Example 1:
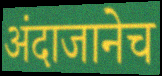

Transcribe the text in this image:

अंदाजानेच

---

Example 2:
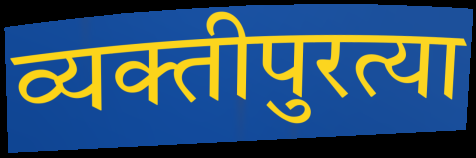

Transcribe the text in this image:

व्यक्तीपुरत्या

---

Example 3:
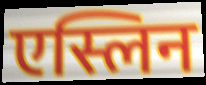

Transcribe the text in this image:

एस्लिन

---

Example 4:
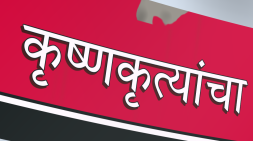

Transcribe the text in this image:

कृष्णकृत्यांचा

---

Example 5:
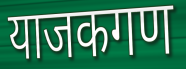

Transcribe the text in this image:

याजकगण